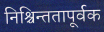
निश्चिन्ततापूर्वक